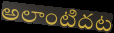
అలాంటిదట